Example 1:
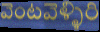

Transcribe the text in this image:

వెంటవెళ్ళిరి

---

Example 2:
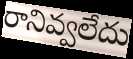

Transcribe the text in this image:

రానివ్వలేదు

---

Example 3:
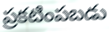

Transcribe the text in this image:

ప్రకటింపబడు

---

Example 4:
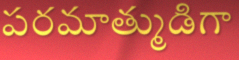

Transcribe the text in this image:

పరమాత్ముడిగా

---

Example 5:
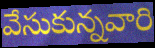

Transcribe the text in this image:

వేసుకున్నవారి